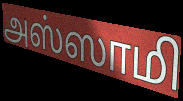
அஸ்ஸாமி